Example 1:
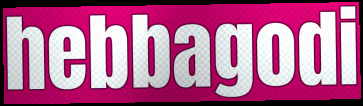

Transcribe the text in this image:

hebbagodi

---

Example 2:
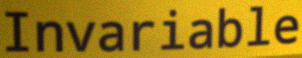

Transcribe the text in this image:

Invariable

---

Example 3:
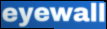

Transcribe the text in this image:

eyewall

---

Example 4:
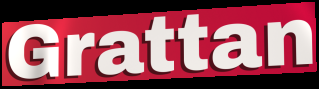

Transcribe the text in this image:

Grattan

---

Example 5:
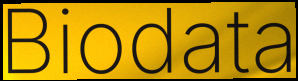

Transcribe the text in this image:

Biodata